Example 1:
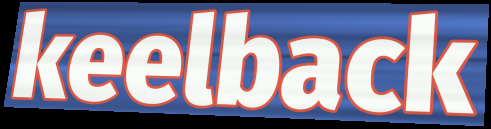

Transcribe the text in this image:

keelback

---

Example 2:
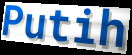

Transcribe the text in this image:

Putih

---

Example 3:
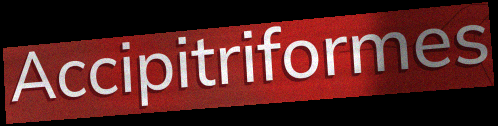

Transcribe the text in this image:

Accipitriformes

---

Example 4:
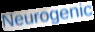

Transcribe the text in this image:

Neurogenic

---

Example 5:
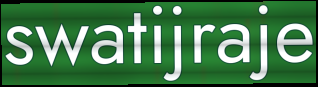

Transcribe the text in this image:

swatijraje